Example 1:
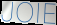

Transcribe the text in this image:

JOIE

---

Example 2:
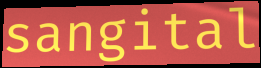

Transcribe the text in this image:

sangital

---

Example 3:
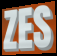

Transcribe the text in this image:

ZES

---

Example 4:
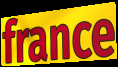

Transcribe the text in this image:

france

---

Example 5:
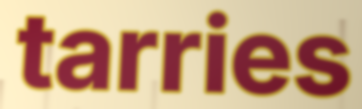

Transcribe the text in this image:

tarries